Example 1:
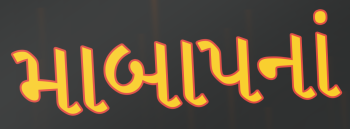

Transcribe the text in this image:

માબાપનાં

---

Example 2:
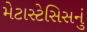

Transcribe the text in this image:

મેટાસ્ટેસિસનું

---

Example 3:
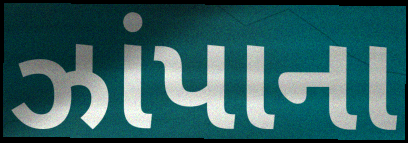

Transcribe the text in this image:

ઝાંપાના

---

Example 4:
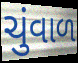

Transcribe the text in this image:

ચુંવાળ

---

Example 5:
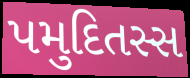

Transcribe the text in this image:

પમુદિતસ્સ